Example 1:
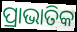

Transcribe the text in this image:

ପ୍ରାଭାତିକ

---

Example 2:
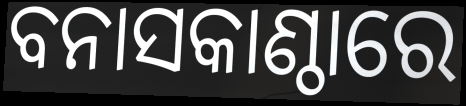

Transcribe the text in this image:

ବନାସକାଣ୍ଠାରେ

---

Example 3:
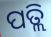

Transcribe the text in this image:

ପତ୍ଲି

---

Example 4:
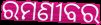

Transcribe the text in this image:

ରମଣୀବର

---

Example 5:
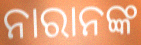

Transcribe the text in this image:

ନାରାନଙ୍କ